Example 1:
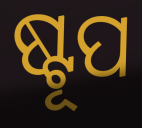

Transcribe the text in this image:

ଷ୍ଟୂପ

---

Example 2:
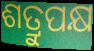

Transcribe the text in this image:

ଶତ୍ରୁପକ୍ଷ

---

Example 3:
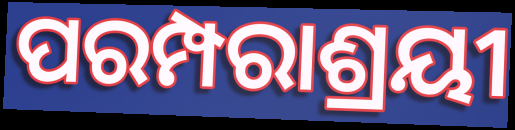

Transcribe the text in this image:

ପରମ୍ପରାଶ୍ରୟୀ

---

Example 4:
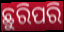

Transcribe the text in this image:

ଛୁରିପରି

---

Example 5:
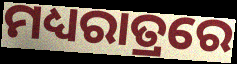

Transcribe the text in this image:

ମଧ୍ୟରାତ୍ରରେ